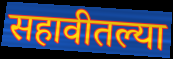
सहावीतल्या